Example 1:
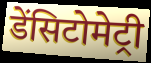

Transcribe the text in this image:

डेंसिटोमेट्री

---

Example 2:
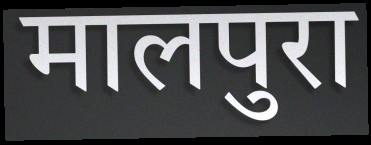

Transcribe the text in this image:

मालपुरा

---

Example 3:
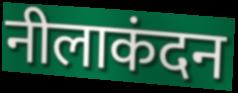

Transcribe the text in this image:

नीलाकंदन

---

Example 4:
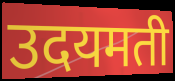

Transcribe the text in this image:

उदयमती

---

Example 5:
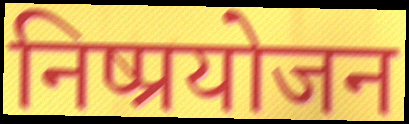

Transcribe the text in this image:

निष्प्रयोजन